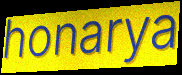
honarya